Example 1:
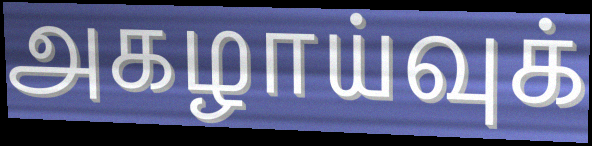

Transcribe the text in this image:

அகழாய்வுக்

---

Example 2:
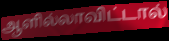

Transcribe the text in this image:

ஆளில்லாவிட்டால்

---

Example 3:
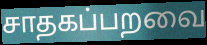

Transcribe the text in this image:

சாதகப்பறவை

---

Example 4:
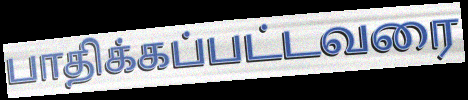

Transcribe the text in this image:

பாதிக்கப்பட்டவரை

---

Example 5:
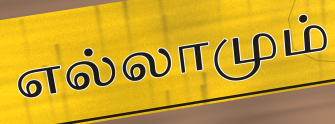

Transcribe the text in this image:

எல்லாமும்